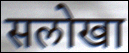
सलोखा